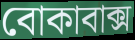
বোকাবাক্স